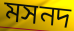
মসনদ